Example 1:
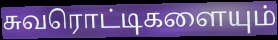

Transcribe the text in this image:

சுவரொட்டிகளையும்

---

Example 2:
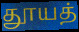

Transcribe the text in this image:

தூயத்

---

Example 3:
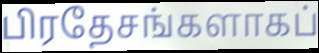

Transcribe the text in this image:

பிரதேசங்களாகப்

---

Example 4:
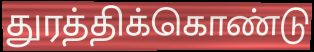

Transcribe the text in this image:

துரத்திக்கொண்டு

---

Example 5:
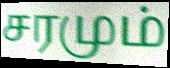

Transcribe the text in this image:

சரமும்